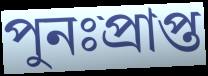
পুনঃপ্রাপ্ত